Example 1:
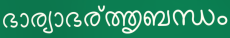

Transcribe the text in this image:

ഭാര്യാഭര്ത്തൃബന്ധം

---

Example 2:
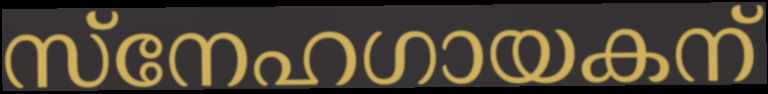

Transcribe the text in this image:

സ്നേഹഗായകന്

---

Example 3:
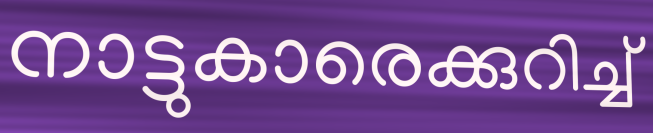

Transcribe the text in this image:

നാട്ടുകാരെക്കുറിച്ച്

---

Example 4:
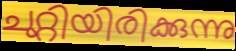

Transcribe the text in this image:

ചുറ്റിയിരിക്കുന്നു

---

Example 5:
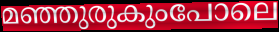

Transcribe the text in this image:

മഞ്ഞുരുകുംപോലെ